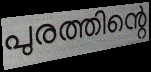
പുരത്തിന്റെ